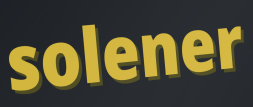
solener